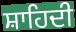
ਸ਼ਾਹਿਦੀ